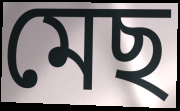
মেছ